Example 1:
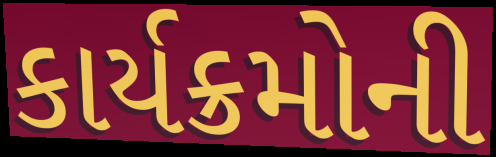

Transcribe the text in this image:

કાર્યક્રમોની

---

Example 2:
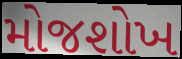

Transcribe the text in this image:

મોજશોખ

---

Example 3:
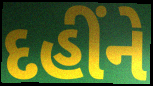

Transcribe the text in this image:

દહીંને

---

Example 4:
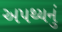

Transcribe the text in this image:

અપથ્યનું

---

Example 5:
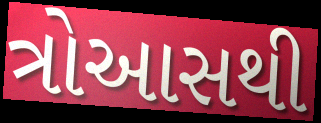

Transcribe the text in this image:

ત્રોઆસથી